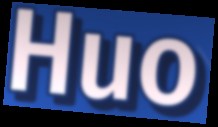
Huo